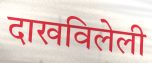
दाखविलेली